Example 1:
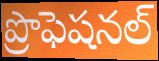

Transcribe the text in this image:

ప్రొఫెషనల్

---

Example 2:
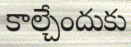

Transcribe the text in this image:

కాల్చేందుకు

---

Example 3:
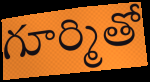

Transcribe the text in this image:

గూర్మితో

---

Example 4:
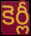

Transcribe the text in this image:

కెర్లీ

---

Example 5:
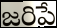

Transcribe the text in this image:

జరిపే